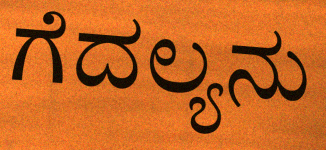
ಗೆದಲ್ಯನು